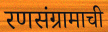
रणसंग्रामाची